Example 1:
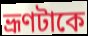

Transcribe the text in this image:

ভ্রূণটাকে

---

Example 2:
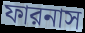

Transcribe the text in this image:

ফারনাস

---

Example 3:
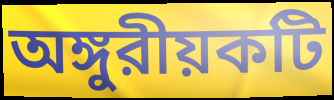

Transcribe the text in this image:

অঙ্গুরীয়কটি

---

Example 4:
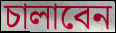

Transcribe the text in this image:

চালাবেন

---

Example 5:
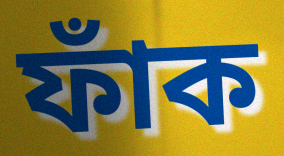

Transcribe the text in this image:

ফাঁক